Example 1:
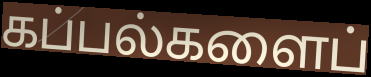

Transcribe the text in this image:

கப்பல்களைப்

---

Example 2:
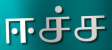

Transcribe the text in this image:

ஈச்ச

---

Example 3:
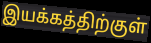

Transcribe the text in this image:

இயக்கத்திற்குள்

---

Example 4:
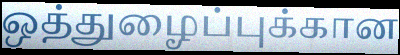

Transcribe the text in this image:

ஒத்துழைப்புக்கான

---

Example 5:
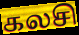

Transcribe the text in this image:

கலசி